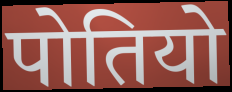
पोतियो